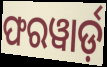
ଫରୱାର୍ଡ଼